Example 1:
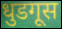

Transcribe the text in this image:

धुडगूस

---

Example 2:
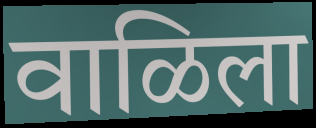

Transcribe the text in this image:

वाळिला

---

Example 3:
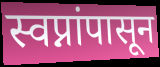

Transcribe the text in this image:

स्वप्नांपासून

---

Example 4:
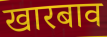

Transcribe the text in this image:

खारबाव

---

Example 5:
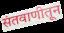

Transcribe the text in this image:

संतवाणीतून